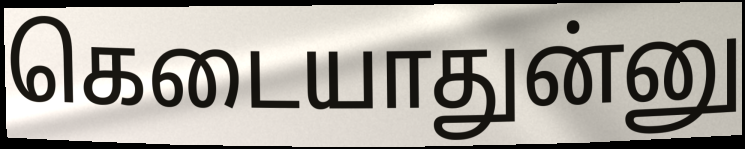
கெடையாதுன்னு